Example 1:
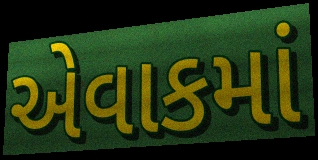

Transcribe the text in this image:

એવાકમાં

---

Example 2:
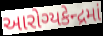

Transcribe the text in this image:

આરોગ્યકેન્દ્રમાં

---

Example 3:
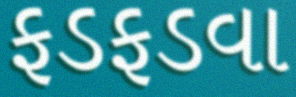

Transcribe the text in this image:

ફડફડવા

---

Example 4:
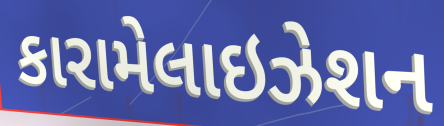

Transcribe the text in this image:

કારામેલાઇઝેશન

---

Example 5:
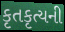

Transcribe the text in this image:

કૃતકૃત્યની